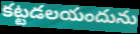
కట్టడలయందును